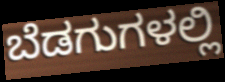
ಬೆಡಗುಗಳಲ್ಲಿ